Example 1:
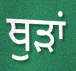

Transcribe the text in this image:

ਥੁੜਾਂ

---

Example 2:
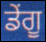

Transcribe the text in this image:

ਡੇਂਗੂ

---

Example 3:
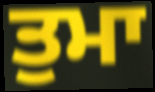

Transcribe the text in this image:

ਤੁਮਾ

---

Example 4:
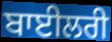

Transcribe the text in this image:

ਬਾਈਲਰੀ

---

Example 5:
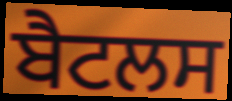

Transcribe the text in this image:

ਬੈਟਲਸ